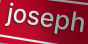
joseph